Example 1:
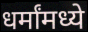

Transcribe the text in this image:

धर्मांमध्ये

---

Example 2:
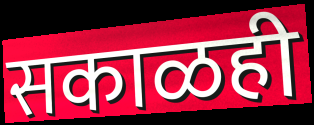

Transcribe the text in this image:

सकाळही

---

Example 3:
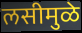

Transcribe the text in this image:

लसीमुळे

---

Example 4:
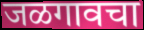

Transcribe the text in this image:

जळगावचा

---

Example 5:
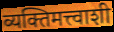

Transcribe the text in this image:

व्यक्तिमत्त्वाशी